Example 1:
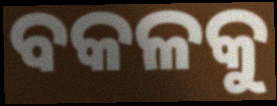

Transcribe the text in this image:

ବକଳକୁ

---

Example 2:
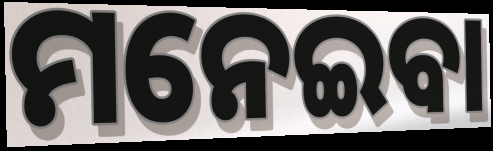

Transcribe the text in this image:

ମନେଇବା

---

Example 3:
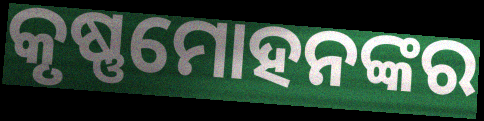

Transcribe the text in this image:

କୃଷ୍ଣମୋହନଙ୍କର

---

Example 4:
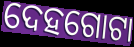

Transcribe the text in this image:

ଦେହଗୋଟା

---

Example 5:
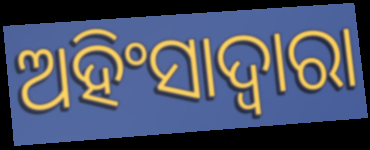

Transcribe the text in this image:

ଅହିଂସାଦ୍ୱାରା